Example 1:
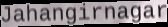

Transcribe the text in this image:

Jahangirnagar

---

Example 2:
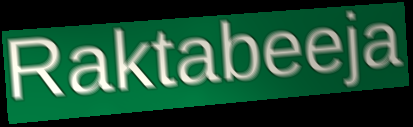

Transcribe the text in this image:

Raktabeeja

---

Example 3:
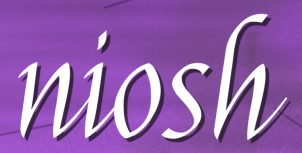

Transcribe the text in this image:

niosh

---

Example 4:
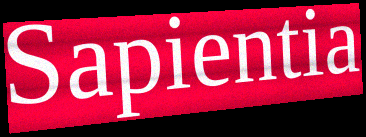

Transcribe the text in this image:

Sapientia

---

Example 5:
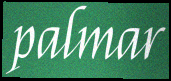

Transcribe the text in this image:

palmar